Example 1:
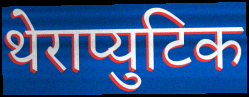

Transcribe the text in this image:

थेराप्युटिक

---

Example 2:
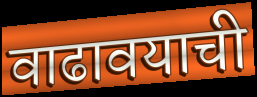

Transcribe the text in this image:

वाढावयाची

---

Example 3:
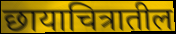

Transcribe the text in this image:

छायाचित्रातील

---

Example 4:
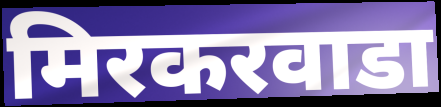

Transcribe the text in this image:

मिरकरवाडा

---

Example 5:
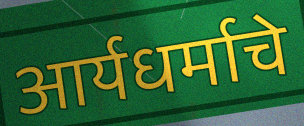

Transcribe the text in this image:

आर्यधर्माचे